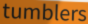
tumblers